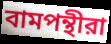
বামপন্থীরা